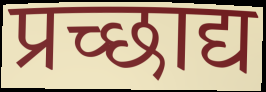
प्रच्छाद्य